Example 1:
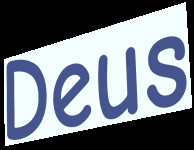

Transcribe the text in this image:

Deus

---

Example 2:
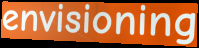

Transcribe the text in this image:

envisioning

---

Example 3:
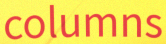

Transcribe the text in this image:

columns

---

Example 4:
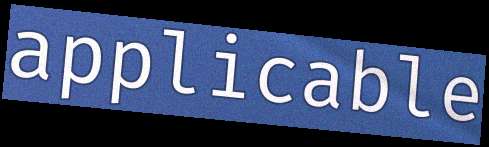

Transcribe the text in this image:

applicable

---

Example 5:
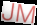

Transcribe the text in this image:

JM